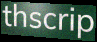
thscrip